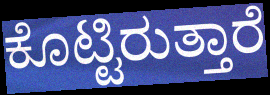
ಕೊಟ್ಟಿರುತ್ತಾರೆ